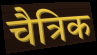
चैत्रिक